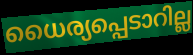
ധൈര്യപ്പെടാറില്ല